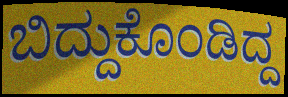
ಬಿದ್ದುಕೊಂಡಿದ್ದ